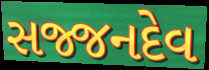
સજ્જનદેવ